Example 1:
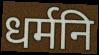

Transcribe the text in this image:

धर्मनि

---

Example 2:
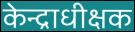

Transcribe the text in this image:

केन्द्राधीक्षक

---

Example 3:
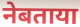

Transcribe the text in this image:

नेबताया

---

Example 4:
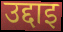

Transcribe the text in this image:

उद्दाइ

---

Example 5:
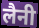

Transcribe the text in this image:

लैनी